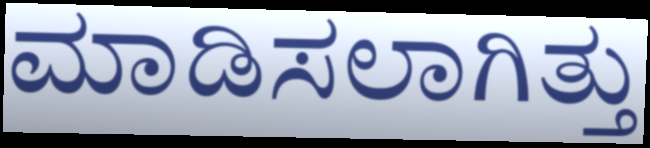
ಮಾಡಿಸಲಾಗಿತ್ತು